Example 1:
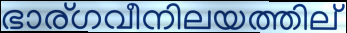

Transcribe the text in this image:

ഭാര്ഗവീനിലയത്തില്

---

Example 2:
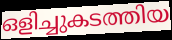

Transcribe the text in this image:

ഒളിച്ചുകടത്തിയ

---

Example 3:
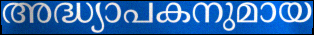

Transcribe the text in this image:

അദ്ധ്യാപകനുമായ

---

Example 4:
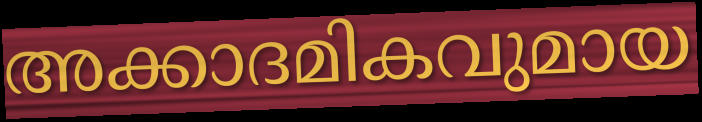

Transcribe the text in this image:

അക്കാദമികവുമായ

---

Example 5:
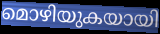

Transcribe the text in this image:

മൊഴിയുകയായി